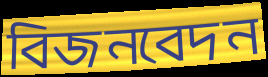
বিজনবেদন